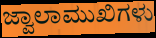
ಜ್ವಾಲಾಮುಖಿಗಳು